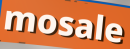
mosale